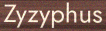
Zyzyphus